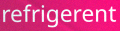
refrigerent